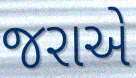
જરાએ